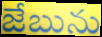
జేబును